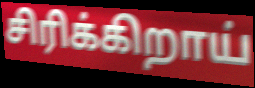
சிரிக்கிறாய்